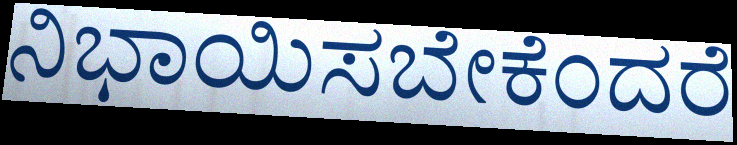
ನಿಭಾಯಿಸಬೇಕೆಂದರೆ